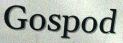
Gospod